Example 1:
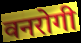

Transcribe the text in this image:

वनरोगी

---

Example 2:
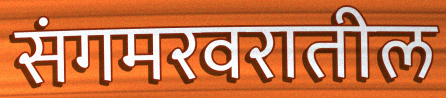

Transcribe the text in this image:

संगमरवरातील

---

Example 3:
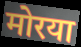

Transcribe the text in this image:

मोरया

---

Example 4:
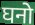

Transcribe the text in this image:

घनो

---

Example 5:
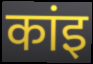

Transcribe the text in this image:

कांइ